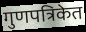
गुणपत्रिकेत